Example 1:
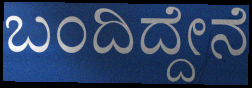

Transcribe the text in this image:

ಬಂದಿದ್ದೇನೆ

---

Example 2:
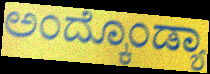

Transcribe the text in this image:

ಅಂದ್ಕೊಂಡ್ಯಾ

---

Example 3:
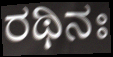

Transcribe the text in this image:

ರಥಿನಃ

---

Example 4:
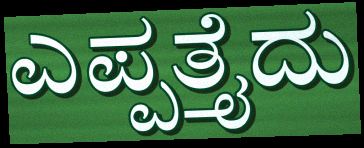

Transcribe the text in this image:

ಎಪ್ಪತ್ತೈದು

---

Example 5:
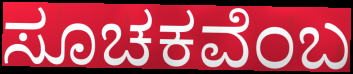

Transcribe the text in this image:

ಸೂಚಕವೆಂಬ